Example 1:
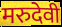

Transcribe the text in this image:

मरुदेवी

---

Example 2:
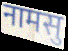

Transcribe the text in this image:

नामसु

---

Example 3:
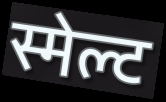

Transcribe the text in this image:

स्मेल्ट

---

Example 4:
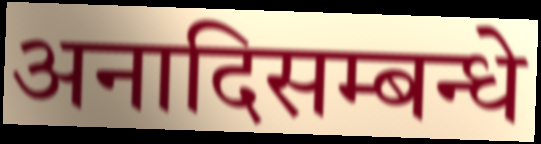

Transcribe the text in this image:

अनादिसम्बन्धे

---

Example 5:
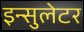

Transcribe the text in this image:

इन्सुलेटर